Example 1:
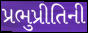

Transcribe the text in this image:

પ્રભુપ્રીતિની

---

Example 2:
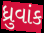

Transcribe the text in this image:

ધ્રુવાંક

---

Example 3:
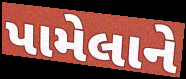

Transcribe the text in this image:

પામેલાને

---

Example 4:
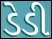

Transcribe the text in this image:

ડેડી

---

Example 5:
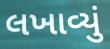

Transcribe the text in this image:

લખાવ્યું